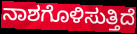
ನಾಶಗೊಳಿಸುತ್ತಿದೆ